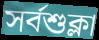
সর্বশুক্লা